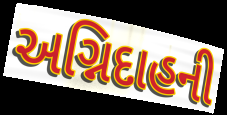
અગ્નિદાહની